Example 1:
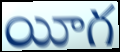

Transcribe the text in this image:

యీగ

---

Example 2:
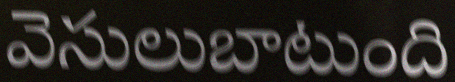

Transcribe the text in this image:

వెసులుబాటుంది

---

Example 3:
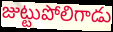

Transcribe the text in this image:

జుట్టుపోలిగాడు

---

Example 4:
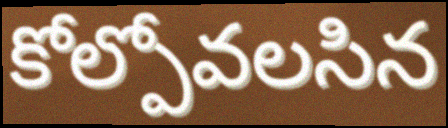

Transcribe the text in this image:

కోల్పోవలసిన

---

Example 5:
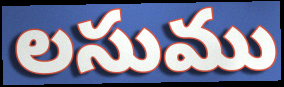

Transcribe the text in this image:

లసుము